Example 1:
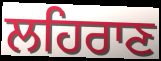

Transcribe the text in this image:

ਲਹਿਰਾਣ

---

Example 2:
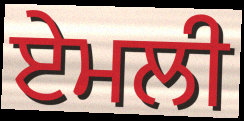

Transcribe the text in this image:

ਏਮਲੀ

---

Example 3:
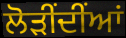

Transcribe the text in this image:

ਲੋੜੀਂਦੀਂਆਂ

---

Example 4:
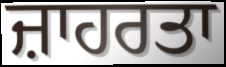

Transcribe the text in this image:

ਜ਼ਾਹਰਤਾ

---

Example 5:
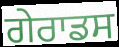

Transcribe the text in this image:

ਗੇਰਾਡਸ